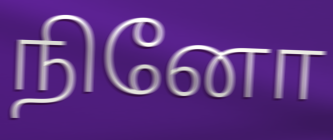
நினோ